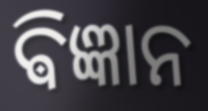
ଵିଜ୍ଞାନ